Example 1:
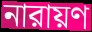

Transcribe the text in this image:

নারায়ণ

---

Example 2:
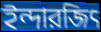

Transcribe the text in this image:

ইন্দারজিৎ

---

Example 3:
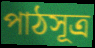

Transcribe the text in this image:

পাঠসূত্র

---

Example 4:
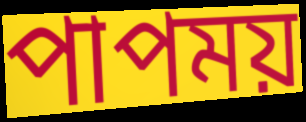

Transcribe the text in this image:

পাপময়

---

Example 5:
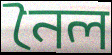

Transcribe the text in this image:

নৈল